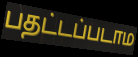
பதட்டப்படாம